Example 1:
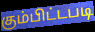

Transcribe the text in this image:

கும்பிட்டபடி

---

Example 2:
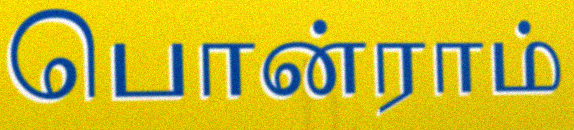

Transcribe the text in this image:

பொன்ராம்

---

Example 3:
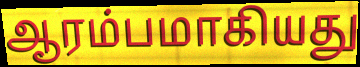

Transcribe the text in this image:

ஆரம்பமாகியது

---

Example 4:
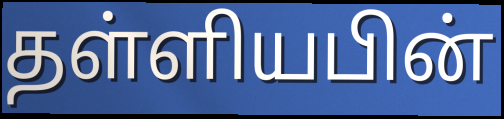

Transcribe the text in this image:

தள்ளியபின்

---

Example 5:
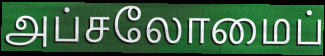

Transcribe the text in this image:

அப்சலோமைப்